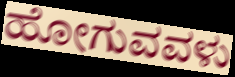
ಹೋಗುವವಳು